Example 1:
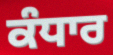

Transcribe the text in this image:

ਕੰਧਾਰ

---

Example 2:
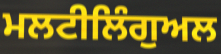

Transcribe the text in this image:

ਮਲਟੀਲਿੰਗੁਅਲ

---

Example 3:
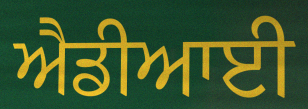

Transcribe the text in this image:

ਐਡੀਆਈ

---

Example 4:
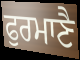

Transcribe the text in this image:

ਫੁਰਮਾਣੈ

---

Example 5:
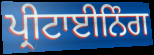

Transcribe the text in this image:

ਪ੍ਰੀਟਾਈਨਿੰਗ